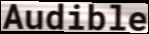
Audible